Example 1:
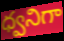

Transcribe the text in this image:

ధ్వనిగా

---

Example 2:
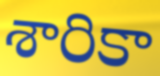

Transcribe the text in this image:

శారికా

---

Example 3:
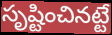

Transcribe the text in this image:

సృష్టించినట్టే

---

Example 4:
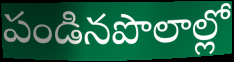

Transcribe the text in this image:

పండినపొలాల్లో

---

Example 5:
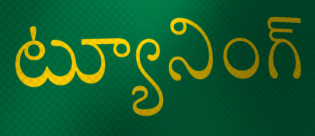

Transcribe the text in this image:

ట్యూనింగ్